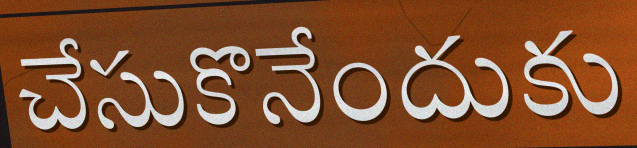
చేసుకొనేందుకు